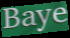
Baye